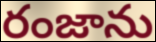
రంజాను